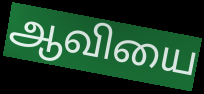
ஆவியை